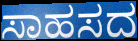
ಸಾಹಸದ